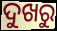
ଦୁଖରୁ